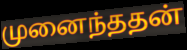
முனைந்ததன்